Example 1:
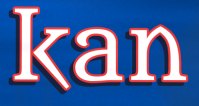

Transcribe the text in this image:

kan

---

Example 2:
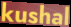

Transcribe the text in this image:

kushal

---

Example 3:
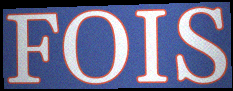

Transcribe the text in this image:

FOIS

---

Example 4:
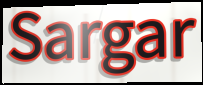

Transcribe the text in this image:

Sargar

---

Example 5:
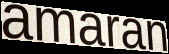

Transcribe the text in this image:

amaran